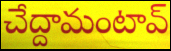
చేద్దామంటావ్